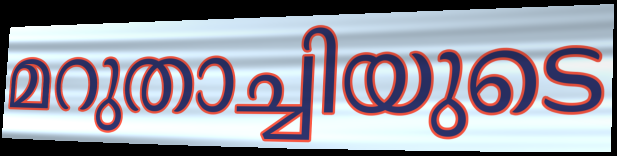
മറുതാച്ചിയുടെ